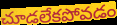
చూడలేకపోవడం